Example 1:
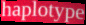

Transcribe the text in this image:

haplotype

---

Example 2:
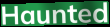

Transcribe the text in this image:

Haunted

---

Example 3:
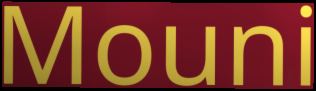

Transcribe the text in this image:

Mouni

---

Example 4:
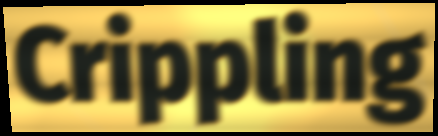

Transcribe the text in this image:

Crippling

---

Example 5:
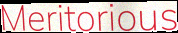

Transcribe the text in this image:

Meritorious